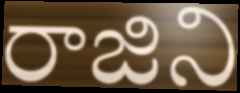
రాజిని